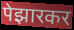
पेझारकर